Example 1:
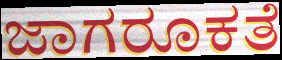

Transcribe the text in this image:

ಜಾಗರೂಕತೆ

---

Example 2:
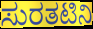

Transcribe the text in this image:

ಸುರತಟಿನಿ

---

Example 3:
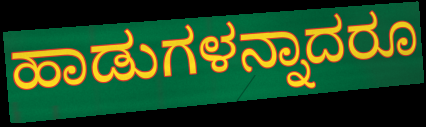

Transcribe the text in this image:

ಹಾಡುಗಳನ್ನಾದರೂ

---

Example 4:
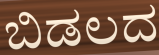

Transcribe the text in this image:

ಬಿಡಲದ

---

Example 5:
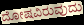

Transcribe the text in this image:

ದೋಷವಿರುವುದು